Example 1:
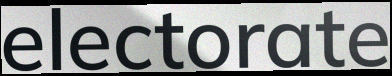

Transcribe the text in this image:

electorate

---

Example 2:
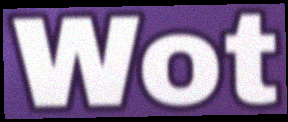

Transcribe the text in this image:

Wot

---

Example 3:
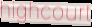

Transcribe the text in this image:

highcourt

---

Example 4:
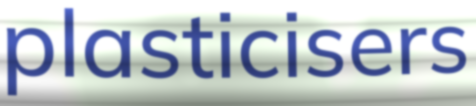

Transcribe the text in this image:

plasticisers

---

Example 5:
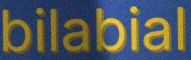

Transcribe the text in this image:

bilabial